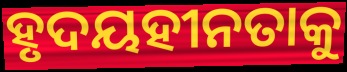
ହୃଦୟହୀନତାକୁ